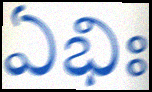
ఏభిః